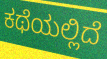
ಕಥೆಯಲ್ಲಿದೆ